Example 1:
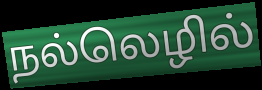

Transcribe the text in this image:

நல்லெழில்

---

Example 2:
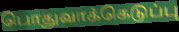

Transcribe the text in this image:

பொதுவாக்கெடுப்பு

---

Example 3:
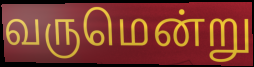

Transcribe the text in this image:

வருமென்று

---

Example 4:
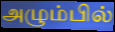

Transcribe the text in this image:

அழும்பில்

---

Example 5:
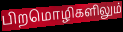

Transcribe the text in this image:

பிறமொழிகளிலும்